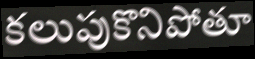
కలుపుకొనిపోతూ